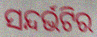
ସନ୍ଦର୍ଭଟିର